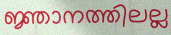
ജ്ഞാനത്തിലല്ല